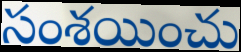
సంశయించు